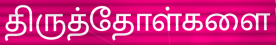
திருத்தோள்களை